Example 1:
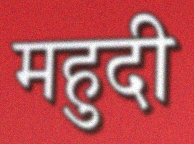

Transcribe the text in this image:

महुदी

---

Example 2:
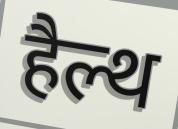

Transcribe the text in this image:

हैल्थ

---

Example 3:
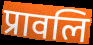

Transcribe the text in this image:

प्रावलि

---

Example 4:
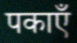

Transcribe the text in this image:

पकाएँ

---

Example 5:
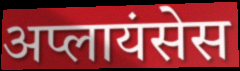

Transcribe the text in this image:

अप्लायंसेस